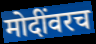
मोदींवरच